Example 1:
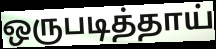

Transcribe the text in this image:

ஒருபடித்தாய்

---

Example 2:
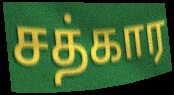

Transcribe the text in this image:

சத்கார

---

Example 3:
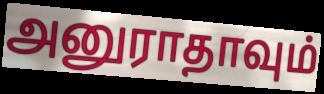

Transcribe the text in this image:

அனுராதாவும்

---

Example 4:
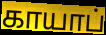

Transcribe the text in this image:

காயாப்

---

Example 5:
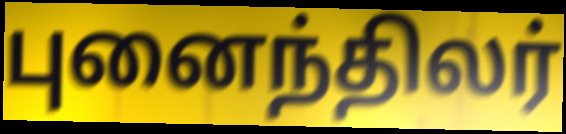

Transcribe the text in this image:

புனைந்திலர்